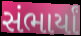
સંભાર્યાં